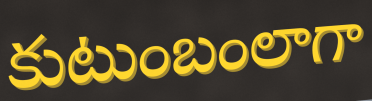
కుటుంబంలాగా